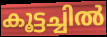
കൂട്ടച്ചിൽ